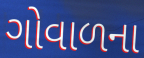
ગોવાળના